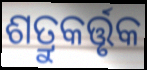
ଶତ୍ରୁକର୍ତ୍ତୃକ